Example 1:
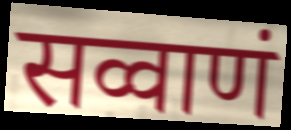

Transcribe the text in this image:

सव्वाणं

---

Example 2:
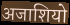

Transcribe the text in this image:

अजाशियो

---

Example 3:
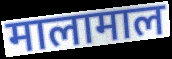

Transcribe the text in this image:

मालामाल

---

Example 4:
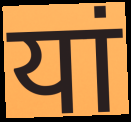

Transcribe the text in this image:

यां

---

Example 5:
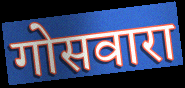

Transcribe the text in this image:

गोसवारा